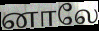
னாலே